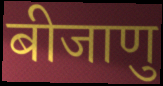
बीजाणु